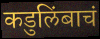
कडुलिंबाचं